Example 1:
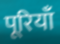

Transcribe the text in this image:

पूरियाँ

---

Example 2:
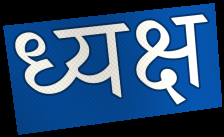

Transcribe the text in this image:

ध्यक्ष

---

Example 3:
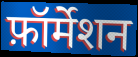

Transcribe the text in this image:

फ़ॉर्मेशन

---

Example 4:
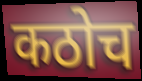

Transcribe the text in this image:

कठोच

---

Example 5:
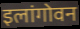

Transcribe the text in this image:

इलांगोवन